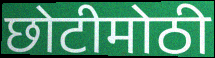
छोटीमोठी